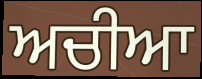
ਅਚੀਆ